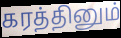
கரத்தினும்